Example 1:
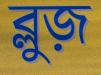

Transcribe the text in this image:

ব্লুজ়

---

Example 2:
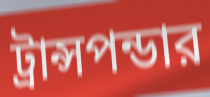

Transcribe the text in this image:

ট্রান্সপন্ডার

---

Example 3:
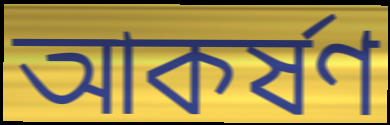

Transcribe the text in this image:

আকর্ষণ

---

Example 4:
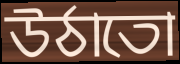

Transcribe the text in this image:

উঠাতো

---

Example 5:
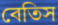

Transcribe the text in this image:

বেতিস